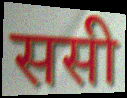
ससी